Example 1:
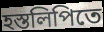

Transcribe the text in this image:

হস্তলিপিতে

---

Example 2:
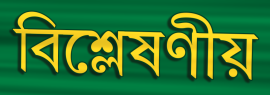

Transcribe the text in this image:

বিশ্লেষণীয়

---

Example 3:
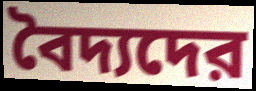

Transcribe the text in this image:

বৈদ্যদের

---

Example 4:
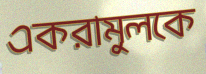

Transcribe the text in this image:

একরামুলকে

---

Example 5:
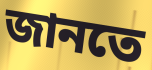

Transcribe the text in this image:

জানতে